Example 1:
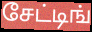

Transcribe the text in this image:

சேட்டிங்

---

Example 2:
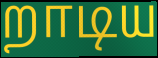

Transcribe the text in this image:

றாடிய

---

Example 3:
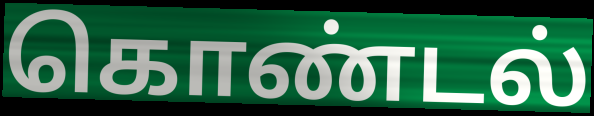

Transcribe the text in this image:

கொண்டல்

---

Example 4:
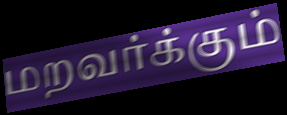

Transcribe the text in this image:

மறவர்க்கும்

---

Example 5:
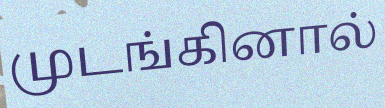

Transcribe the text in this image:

முடங்கினால்